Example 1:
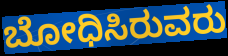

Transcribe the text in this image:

ಬೋಧಿಸಿರುವರು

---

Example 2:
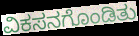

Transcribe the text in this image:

ವಿಕಸನಗೊಂಡಿತು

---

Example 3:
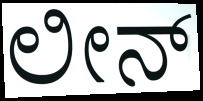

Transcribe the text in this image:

ಲೀನ್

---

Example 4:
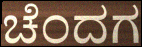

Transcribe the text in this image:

ಚೆಂದಗ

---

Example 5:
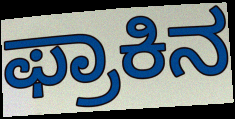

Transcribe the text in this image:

ಫ್ರಾಕಿನ